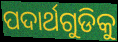
ପଦାର୍ଥଗୁଡିକୁ